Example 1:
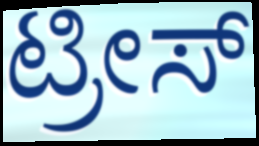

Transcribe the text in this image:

ಟ್ರೀಸ್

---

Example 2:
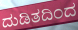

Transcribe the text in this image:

ದುಡಿತದಿಂದ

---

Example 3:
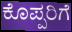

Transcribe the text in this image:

ಕೊಪ್ಪರಿಗೆ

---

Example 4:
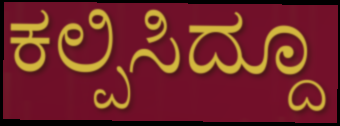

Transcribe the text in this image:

ಕಲ್ಪಿಸಿದ್ದೂ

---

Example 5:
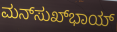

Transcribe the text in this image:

ಮನ್‌ಸುಖ್‌ಭಾಯ್